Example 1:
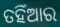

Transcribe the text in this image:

ତହିଁଆର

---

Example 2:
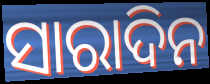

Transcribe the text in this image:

ସାରାଦିନ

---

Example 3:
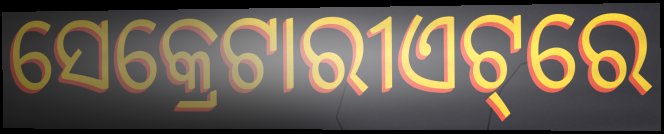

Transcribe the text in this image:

ସେକ୍ରେଟାରୀଏଟ୍‌ରେ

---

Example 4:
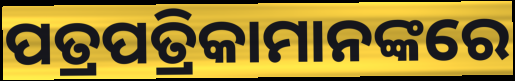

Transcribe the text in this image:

ପତ୍ରପତ୍ରିକାମାନଙ୍କରେ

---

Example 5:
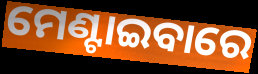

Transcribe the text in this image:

ମେଣ୍ଟାଇବାରେ